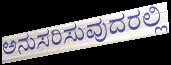
ಅನುಸರಿಸುವುದರಲ್ಲಿ